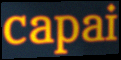
capai